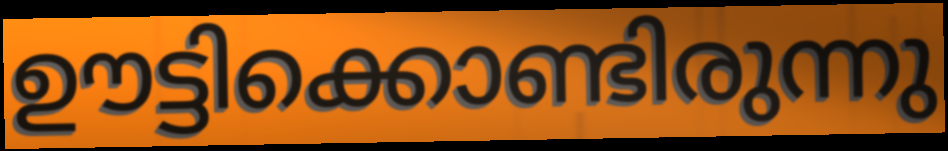
ഊട്ടിക്കൊണ്ടിരുന്നു